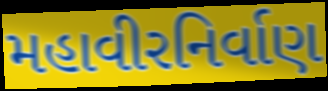
મહાવીરનિર્વાણ